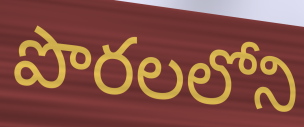
పొరలలోని